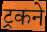
ट्रकने